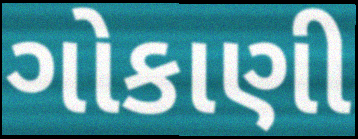
ગોકાણી